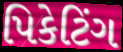
પિકેટિંગ